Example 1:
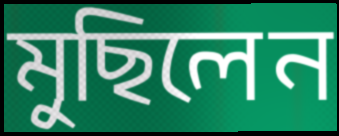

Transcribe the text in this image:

মুছিলেন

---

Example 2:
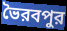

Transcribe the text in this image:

ভৈরবপুর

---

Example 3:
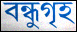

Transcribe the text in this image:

বন্ধুগৃহ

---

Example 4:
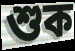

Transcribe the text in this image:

শুক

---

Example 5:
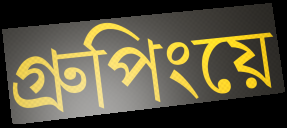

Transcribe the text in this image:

গ্রুপিংয়ে